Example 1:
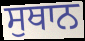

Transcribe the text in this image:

ਸੁਥਾਨ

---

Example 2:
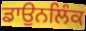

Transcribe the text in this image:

ਡਾਉਨਲਿੰਕ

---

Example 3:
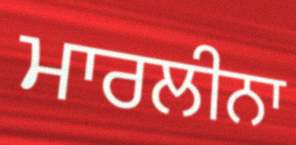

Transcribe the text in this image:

ਮਾਰਲੀਨਾ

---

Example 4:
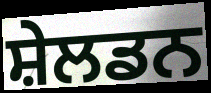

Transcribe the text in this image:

ਸ਼ੇਲਡਨ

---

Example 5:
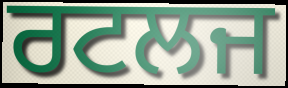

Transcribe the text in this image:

ਰਟਲਜ